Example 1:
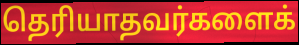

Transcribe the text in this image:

தெரியாதவர்களைக்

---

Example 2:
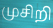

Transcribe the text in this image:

முசிறி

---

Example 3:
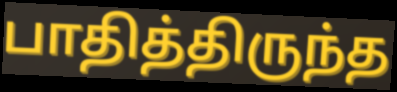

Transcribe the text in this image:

பாதித்திருந்த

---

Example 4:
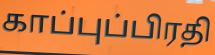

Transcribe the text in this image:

காப்புப்பிரதி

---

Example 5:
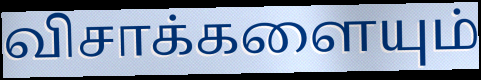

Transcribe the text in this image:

விசாக்களையும்